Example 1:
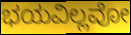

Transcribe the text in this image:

ಭಯವಿಲ್ಲವೋ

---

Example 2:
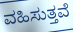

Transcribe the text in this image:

ವಹಿಸುತ್ತವೆ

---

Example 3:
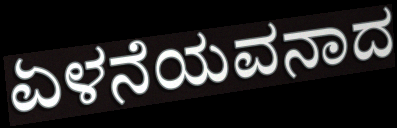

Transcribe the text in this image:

ಏಳನೆಯವನಾದ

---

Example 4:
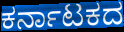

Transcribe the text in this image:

ಕರ್ನಾಟಕದ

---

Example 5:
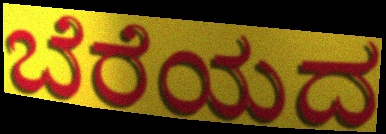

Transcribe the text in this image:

ಬೆರೆಯದ